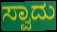
ಸ್ವಾದು